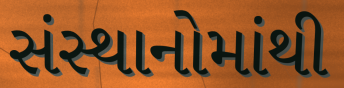
સંસ્થાનોમાંથી